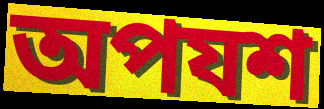
অপযশ